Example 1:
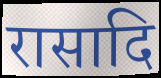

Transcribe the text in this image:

रासादि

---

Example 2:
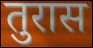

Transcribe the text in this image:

तुरास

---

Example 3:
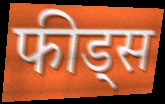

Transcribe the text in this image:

फीड्स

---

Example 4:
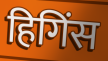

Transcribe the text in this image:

हिगिंस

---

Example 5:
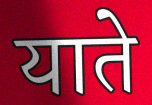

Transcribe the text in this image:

याते